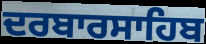
ਦਰਬਾਰਸਾਹਿਬ